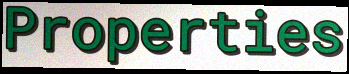
Properties